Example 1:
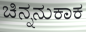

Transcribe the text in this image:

ಚಿನ್ನನುಕಾಕ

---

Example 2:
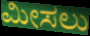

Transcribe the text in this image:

ಮೀಸಲು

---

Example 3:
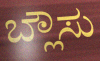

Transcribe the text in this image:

ಬ್ಲೌಸು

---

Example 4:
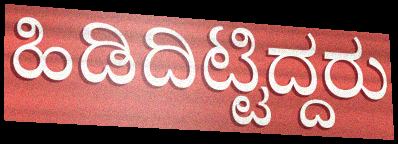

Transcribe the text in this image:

ಹಿಡಿದಿಟ್ಟಿದ್ದರು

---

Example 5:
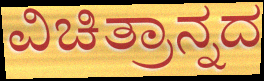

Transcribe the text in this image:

ವಿಚಿತ್ರಾನ್ನದ